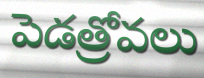
పెడత్రోవలు